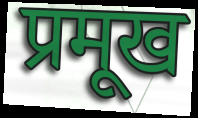
प्रमूख